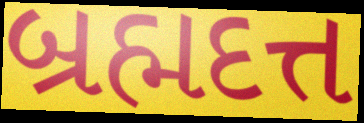
બ્રહ્મદત્ત